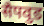
सैपवुड